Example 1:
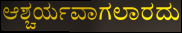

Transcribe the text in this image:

ಆಶ್ಚರ್ಯವಾಗಲಾರದು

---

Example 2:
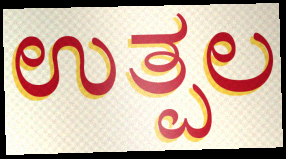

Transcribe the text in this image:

ಉತ್ಪಲ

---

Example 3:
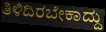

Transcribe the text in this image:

ತಿಳಿದಿರಬೇಕಾದ್ದು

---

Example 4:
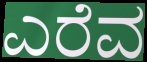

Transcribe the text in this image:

ಎರೆವ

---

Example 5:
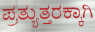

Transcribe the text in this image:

ಪ್ರತ್ಯುತ್ತರಕ್ಕಾಗಿ